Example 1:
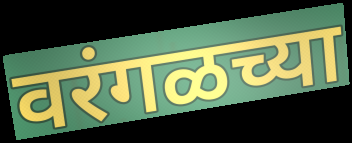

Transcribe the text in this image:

वरंगळच्या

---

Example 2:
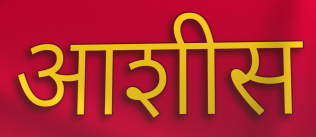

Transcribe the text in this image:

आशीस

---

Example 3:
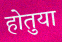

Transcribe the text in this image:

होतुया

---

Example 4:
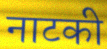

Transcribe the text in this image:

नाटकी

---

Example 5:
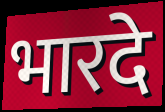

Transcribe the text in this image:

भारदे